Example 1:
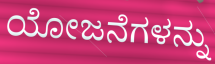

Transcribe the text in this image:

ಯೋಜನೆಗಳನ್ನು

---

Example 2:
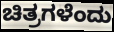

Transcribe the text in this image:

ಚಿತ್ರಗಳೆಂದು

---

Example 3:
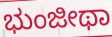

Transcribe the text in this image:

ಭುಂಜೀಥಾ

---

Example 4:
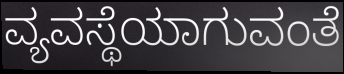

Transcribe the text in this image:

ವ್ಯವಸ್ಥೆಯಾಗುವಂತೆ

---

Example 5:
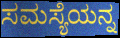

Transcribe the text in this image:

ಸಮಸ್ಯೆಯನ್ನ